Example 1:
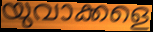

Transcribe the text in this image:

യുവാക്കളെ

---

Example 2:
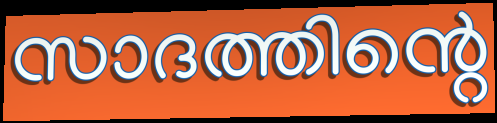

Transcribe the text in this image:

സാദത്തിന്റെ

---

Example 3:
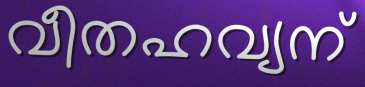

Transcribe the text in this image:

വീതഹവ്യന്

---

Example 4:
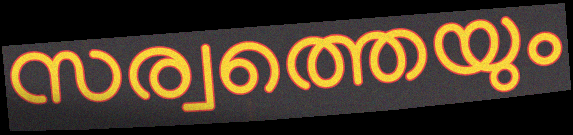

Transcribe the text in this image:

സര്വത്തെയും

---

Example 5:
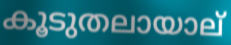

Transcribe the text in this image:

കൂടുതലായാല്